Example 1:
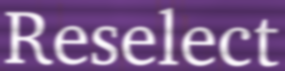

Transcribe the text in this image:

Reselect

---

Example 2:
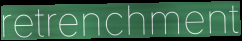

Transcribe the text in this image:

retrenchment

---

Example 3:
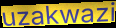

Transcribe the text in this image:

uzakwazi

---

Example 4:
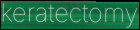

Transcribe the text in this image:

keratectomy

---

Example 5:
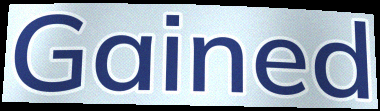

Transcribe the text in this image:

Gained